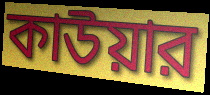
কাউয়ার